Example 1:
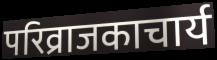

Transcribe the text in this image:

परिव्राजकाचार्य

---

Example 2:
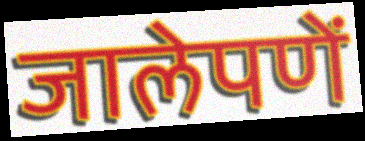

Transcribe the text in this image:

जालेपणें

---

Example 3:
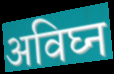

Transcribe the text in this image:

अविघ्न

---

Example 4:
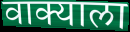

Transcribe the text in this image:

वाक्याला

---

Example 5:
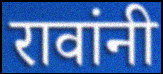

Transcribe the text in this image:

रावांनी